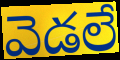
వెడలే